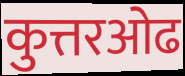
कुत्तरओढ